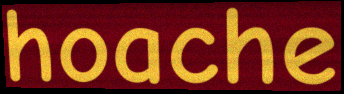
hoache